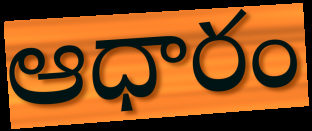
ఆధారం